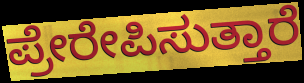
ಪ್ರೇರೇಪಿಸುತ್ತಾರೆ